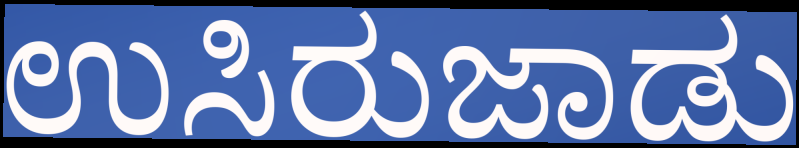
ಉಸಿರುಜಾಡು